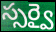
స్సర్వై